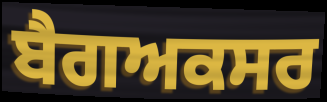
ਬੈਗਅਕਸਰ